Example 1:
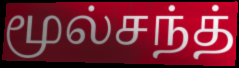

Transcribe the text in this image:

மூல்சந்த்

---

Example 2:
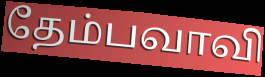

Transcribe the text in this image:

தேம்பவாவி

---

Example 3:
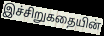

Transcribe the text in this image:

இச்சிறுகதையின்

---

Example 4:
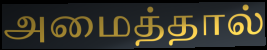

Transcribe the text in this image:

அமைத்தால்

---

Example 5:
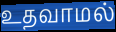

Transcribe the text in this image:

உதவாமல்